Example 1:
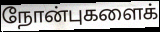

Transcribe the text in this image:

நோன்புகளைக்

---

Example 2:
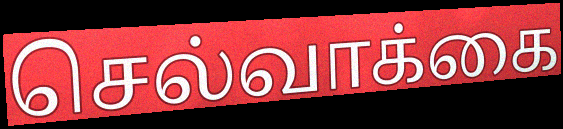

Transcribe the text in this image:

செல்வாக்கை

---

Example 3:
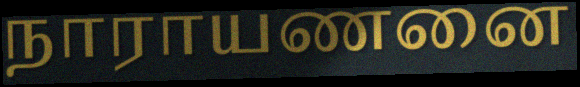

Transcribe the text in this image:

நாராயணனை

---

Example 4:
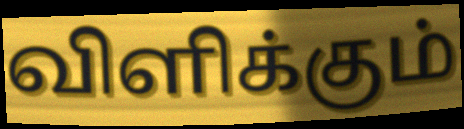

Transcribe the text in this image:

விளிக்கும்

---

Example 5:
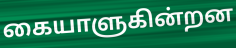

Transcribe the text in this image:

கையாளுகின்றன